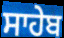
ਸਾਹੇਬ